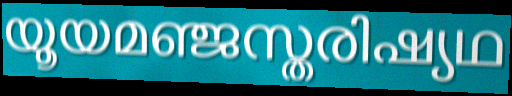
യൂയമഞ്ജസ്തരിഷ്യഥ